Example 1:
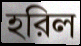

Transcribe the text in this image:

হরিল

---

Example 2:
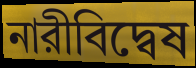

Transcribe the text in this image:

নারীবিদ্বেষ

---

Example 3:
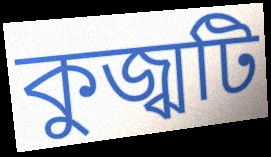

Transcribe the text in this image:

কুজ্ঝটি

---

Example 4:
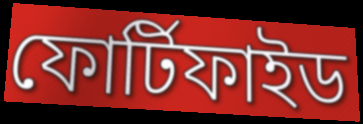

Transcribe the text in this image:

ফোর্টিফাইড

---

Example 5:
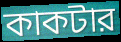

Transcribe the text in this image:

কাকটার